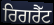
ਰਿਗਰੈੱਟ